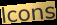
Icons